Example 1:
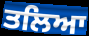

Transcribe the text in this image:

ਤਲਿਆ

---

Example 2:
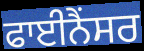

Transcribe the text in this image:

ਫਾਈਨੈਂਸਰ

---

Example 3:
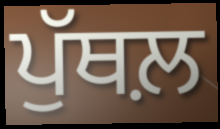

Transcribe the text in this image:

ਪੁੱਥਲ਼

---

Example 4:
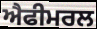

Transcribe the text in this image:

ਐਫੀਮਰਲ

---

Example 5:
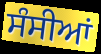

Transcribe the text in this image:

ਸੰਸੀਆਂ